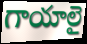
గాయాలై